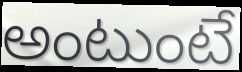
అంటుంటే